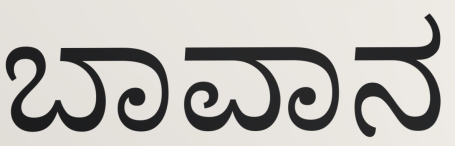
ಬಾವಾನ